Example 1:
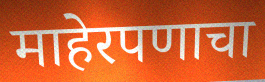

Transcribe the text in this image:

माहेरपणाचा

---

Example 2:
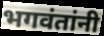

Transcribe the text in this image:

भगवंतांनी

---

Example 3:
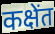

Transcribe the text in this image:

कक्षेंत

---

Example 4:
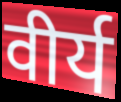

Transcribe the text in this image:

वीर्य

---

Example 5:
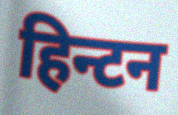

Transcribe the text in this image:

हिन्टन